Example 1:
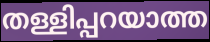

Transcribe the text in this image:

തള്ളിപ്പറയാത്ത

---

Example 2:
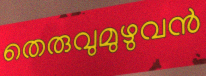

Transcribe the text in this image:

തെരുവുമുഴുവൻ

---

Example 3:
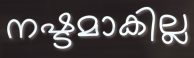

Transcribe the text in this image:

നഷ്ടമാകില്ല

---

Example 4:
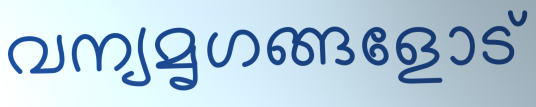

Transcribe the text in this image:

വന്യമൃഗങ്ങളോട്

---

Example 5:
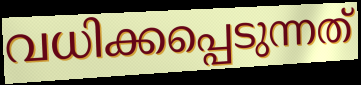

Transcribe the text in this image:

വധിക്കപ്പെടുന്നത്